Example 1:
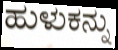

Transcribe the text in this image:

ಹುಳುಕನ್ನು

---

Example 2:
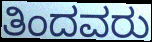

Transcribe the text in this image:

ತಿಂದವರು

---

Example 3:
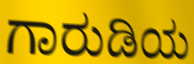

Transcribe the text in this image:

ಗಾರುಡಿಯ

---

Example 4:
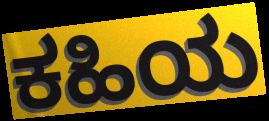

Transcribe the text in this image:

ಕಹಿಯ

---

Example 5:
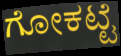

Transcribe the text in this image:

ಗೋಕಟ್ಟೆ